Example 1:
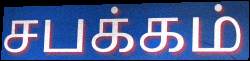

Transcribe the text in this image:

சபக்கம்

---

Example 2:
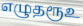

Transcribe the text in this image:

எழுதரூஉ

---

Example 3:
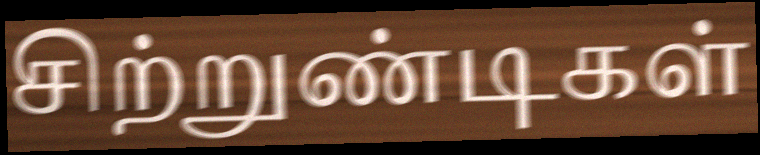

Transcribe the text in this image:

சிற்றுண்டிகள்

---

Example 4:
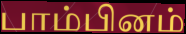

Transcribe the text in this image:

பாம்பினம்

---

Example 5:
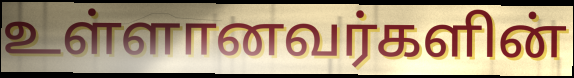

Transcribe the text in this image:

உள்ளானவர்களின்